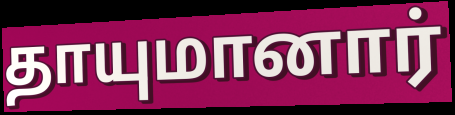
தாயுமானார்